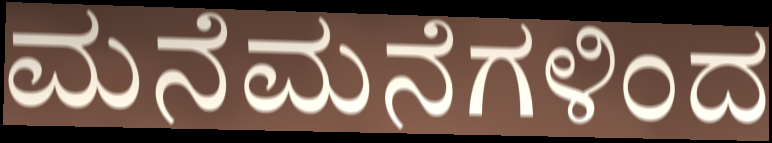
ಮನೆಮನೆಗಳಿಂದ